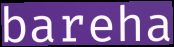
bareha